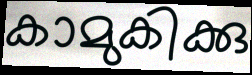
കാമുകിക്കു